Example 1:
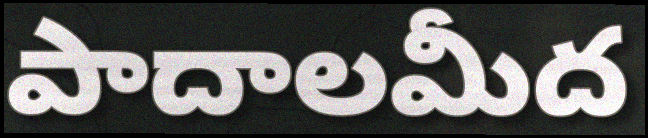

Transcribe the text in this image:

పాదాలమీద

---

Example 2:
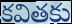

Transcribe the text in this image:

కవితకు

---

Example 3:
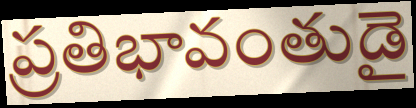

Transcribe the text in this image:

ప్రతిభావంతుడై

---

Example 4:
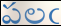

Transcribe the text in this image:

పలఁ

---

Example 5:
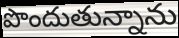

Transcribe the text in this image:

పొందుతున్నాను